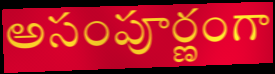
అసంపూర్ణంగా